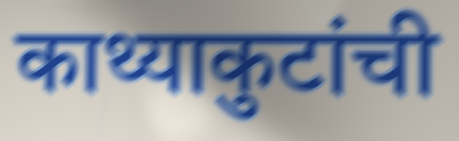
काथ्याकुटांची